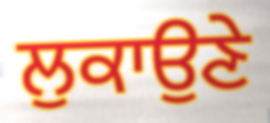
ਲੁਕਾਉਣੇ